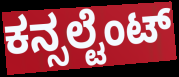
ಕನ್ಸಲ್ಟೆಂಟ್